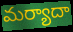
మర్యాదా